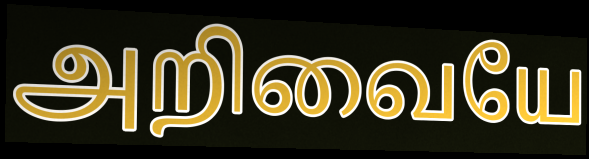
அறிவையே